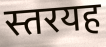
स्तरयह